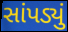
સાંપડ્યું